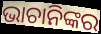
ଭାଚାନିଙ୍କର